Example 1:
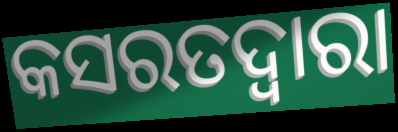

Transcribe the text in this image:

କସରତଦ୍ୱାରା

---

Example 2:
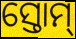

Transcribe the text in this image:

ସ୍ତୋମ୍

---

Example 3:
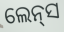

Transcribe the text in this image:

ଲେନ୍‍ସ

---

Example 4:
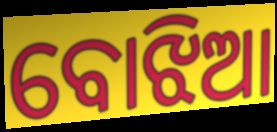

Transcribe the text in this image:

ବୋଝିଆ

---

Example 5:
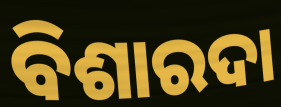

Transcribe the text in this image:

ବିଶାରଦା